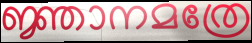
ജ്ഞാനമത്രേ